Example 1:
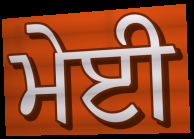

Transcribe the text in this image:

ਮੇਈ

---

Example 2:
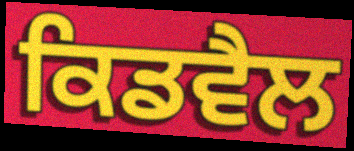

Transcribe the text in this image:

ਕਿਡਵੈਲ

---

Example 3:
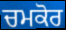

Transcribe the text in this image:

ਚਮਕੋਰ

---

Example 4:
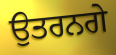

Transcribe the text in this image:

ਉਤਰਨਗੇ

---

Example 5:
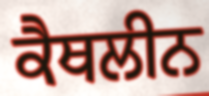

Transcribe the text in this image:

ਕੈਥਲੀਨ